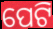
ପେଟି